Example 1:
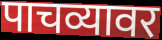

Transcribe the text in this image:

पाचव्यावर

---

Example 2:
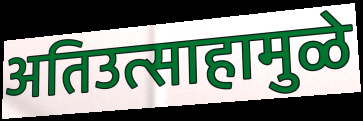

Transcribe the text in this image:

अतिउत्साहामुळे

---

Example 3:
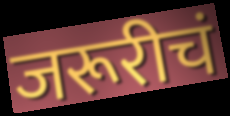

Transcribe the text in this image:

जरूरीचं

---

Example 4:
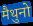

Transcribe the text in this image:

मैथुनो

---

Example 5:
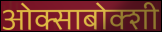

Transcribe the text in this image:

ओक्साबोक्शी